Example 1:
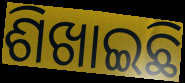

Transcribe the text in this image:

ଶିଖାଇଛି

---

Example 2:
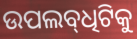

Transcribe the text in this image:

ଉପଲବ୍‌ଧିଟିକୁ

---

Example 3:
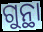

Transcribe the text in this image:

ଗୁନ୍ଥା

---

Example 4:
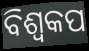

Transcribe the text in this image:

ବିଶ୍ୱକପ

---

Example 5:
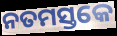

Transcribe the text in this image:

ନତମସ୍ତକେ